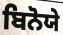
ਬਿਨੋਯੇ